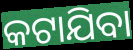
କଟାଯିବା